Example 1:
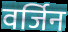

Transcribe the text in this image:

वर्जिन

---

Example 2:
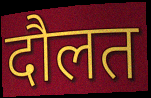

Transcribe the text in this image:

दौलत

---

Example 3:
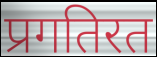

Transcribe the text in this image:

प्रगतिरत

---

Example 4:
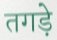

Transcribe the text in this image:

तगड़े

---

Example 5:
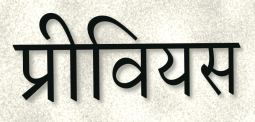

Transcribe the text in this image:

प्रीवियस